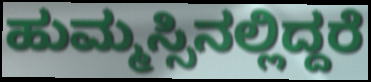
ಹುಮ್ಮಸ್ಸಿನಲ್ಲಿದ್ದರೆ